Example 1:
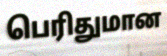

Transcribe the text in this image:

பெரிதுமான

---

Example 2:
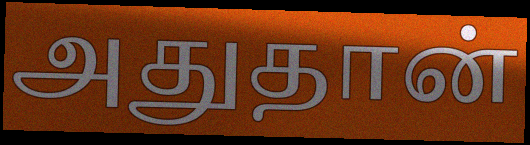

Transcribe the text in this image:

அதுதான்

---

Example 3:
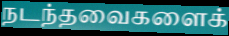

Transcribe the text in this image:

நடந்தவைகளைக்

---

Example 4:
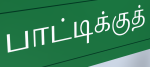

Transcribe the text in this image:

பாட்டிக்குத்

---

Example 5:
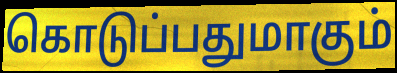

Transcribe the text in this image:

கொடுப்பதுமாகும்